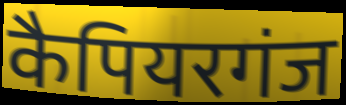
कैपियरगंज